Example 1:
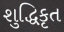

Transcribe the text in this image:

શુદ્ધિકૃત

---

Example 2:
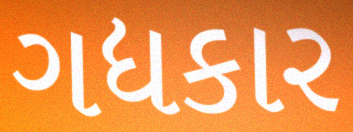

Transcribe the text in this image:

ગદ્યકાર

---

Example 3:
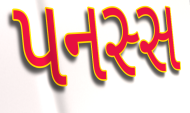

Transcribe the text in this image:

પનસ્સ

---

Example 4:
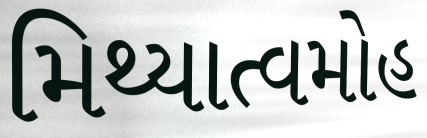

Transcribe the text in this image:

મિથ્યાત્વમોહ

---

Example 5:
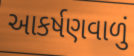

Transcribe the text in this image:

આકર્ષણવાળું